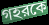
গহরকে